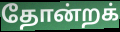
தோன்றக்